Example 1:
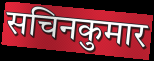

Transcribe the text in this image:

सचिनकुमार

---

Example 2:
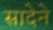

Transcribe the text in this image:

सादेने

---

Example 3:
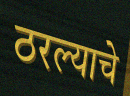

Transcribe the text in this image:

ठरल्याचे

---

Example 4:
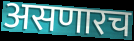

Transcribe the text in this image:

असणारच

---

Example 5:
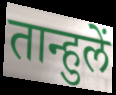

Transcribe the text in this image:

तान्हुलें